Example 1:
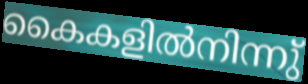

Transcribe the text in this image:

കൈകളിൽനിന്നു്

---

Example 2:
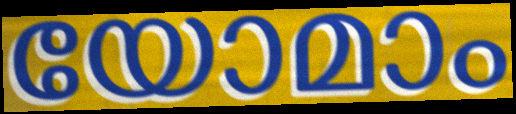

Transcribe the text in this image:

യോമാം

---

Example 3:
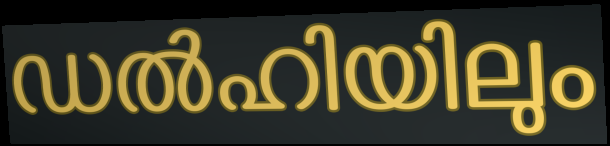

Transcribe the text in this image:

ഡൽഹിയിലും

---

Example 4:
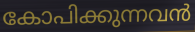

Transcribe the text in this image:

കോപിക്കുന്നവൻ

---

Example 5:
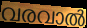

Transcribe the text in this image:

വരവാൽ